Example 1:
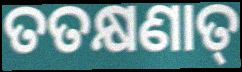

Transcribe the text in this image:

ତତକ୍ଷଣାତ୍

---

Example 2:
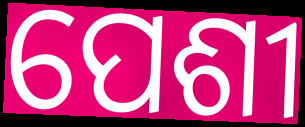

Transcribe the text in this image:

ପେଶୀ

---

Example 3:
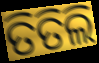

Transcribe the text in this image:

ତିତିଲି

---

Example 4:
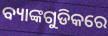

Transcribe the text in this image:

ବ୍ୟାଙ୍କଗୁଡିକରେ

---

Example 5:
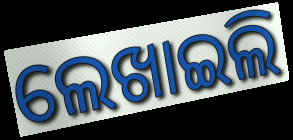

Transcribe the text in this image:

ଲେଖାଇଲି